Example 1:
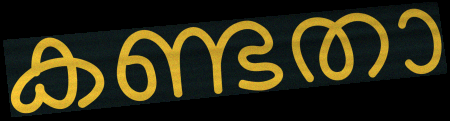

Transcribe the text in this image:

കണ്ടതാ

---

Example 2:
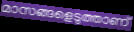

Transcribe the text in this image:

മാസങ്ങളെടുത്താണ്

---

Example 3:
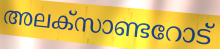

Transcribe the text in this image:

അലക്സാണ്ടറോട്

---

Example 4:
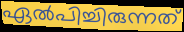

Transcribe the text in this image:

ഏൽപിച്ചിരുന്നത്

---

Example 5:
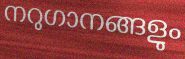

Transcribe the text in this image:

നറുഗാനങ്ങളും